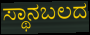
ಸ್ಥಾನಬಲದ